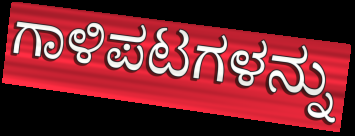
ಗಾಳಿಪಟಗಳನ್ನು